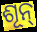
ଶୂନ୍